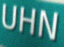
UHN